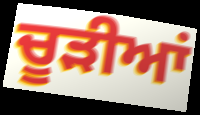
ਚੂੜੀਆਂ